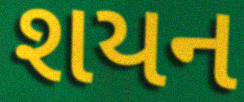
શયન